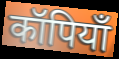
कॉपियाँ